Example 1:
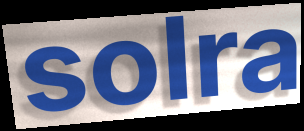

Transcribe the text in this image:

solra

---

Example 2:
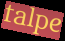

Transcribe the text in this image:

talpe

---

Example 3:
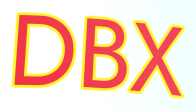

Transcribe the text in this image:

DBX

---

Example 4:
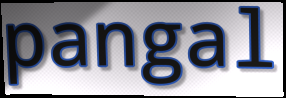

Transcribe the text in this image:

pangal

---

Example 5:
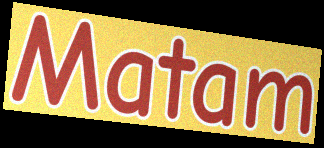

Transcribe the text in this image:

Matam